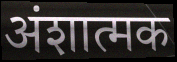
अंशात्मक